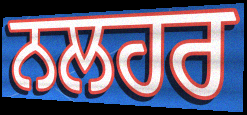
ਨਲਹਰ